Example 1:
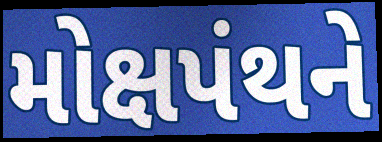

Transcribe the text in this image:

મોક્ષપંથને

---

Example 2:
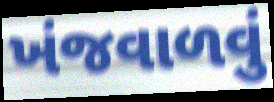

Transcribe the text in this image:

ખંજવાળવું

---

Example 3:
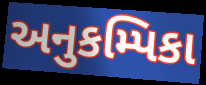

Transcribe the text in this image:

અનુકમ્પિકા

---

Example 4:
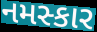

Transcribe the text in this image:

નમસ્કાર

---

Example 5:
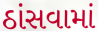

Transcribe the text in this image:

ઠાંસવામાં